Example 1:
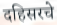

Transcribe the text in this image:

दहिसरचे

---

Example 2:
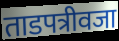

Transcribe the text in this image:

ताडपत्रीवजा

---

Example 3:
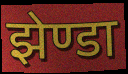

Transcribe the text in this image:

झेण्डा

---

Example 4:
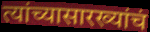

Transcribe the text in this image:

त्यांच्यासारख्यांचं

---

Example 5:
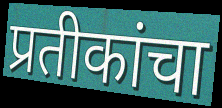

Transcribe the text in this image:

प्रतीकांचा